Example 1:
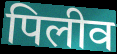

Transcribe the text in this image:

पिलीव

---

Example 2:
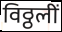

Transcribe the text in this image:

विठ्ठलीं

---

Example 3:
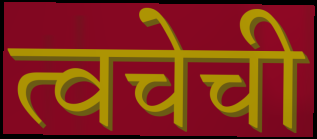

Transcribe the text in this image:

त्वचेची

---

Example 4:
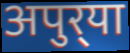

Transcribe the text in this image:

अपुर्‍या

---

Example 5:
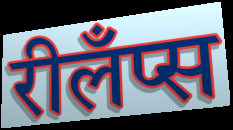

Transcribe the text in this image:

रीलँप्स